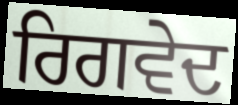
ਰਿਗਵੇਦ